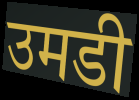
उमडी